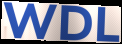
WDL